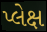
પ્લેક્ષ